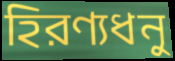
হিরণ্যধনু